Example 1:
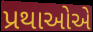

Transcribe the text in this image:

પ્રથાઓએ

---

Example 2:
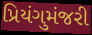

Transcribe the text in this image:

પ્રિયંગુમંજરી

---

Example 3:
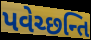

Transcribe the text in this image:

પવેચ્છન્તિ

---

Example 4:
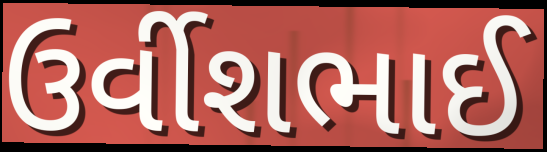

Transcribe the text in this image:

ઉર્વીશભાઈ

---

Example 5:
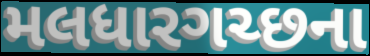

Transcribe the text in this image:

મલધારગચ્છના